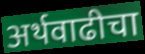
अर्थवाढीचा